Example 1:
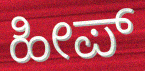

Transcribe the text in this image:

ಹೀಪ್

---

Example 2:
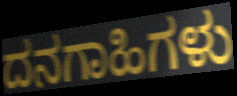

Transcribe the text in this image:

ದನಗಾಹಿಗಳು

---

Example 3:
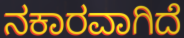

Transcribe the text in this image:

ನಕಾರವಾಗಿದೆ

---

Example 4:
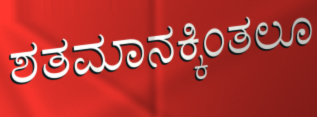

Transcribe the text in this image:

ಶತಮಾನಕ್ಕಿಂತಲೂ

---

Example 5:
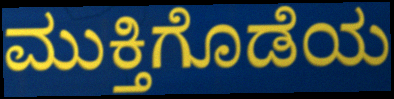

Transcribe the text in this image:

ಮುಕ್ತಿಗೊಡೆಯ